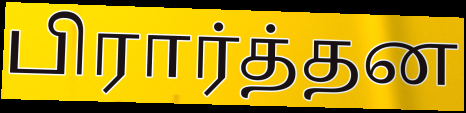
பிரார்த்தன